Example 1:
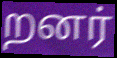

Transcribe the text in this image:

றனர்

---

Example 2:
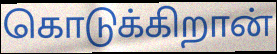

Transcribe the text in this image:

கொடுக்கிறான்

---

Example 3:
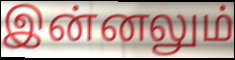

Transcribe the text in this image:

இன்னலும்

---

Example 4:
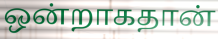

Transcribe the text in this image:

ஒன்றாகதான்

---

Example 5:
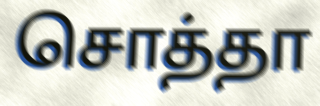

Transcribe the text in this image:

சொத்தா